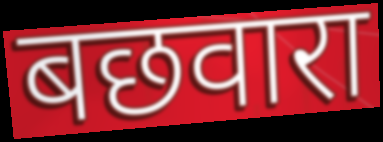
बछवारा